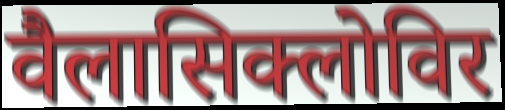
वैलासिक्लोविर